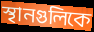
স্থানগুলিকে